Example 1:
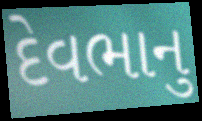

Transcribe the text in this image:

દેવભાનુ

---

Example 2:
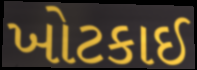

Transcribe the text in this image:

ખોટકાઈ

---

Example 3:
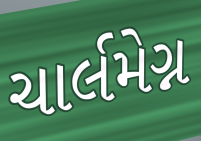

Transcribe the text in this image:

ચાર્લમેગ્ન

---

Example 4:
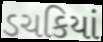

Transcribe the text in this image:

ડચકિયાં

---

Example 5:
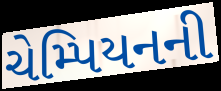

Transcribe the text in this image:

ચેમ્પિયનની